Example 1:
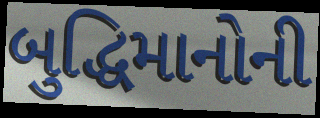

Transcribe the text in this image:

બુદ્ધિમાનોની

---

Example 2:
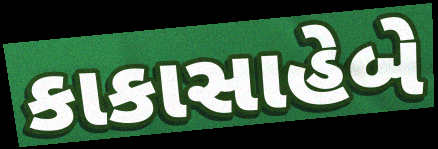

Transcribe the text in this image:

કાકાસાહેબે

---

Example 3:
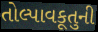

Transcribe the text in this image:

તોલ્પાવકૂતુની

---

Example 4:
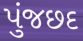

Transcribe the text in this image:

પુંજછદ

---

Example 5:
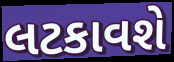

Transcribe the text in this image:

લટકાવશે